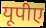
यूपीए